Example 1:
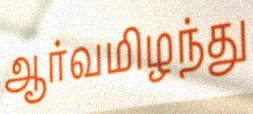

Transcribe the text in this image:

ஆர்வமிழந்து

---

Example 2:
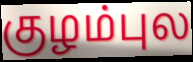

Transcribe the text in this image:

குழம்புல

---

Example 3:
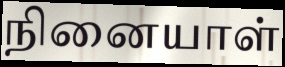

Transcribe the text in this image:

நினையாள்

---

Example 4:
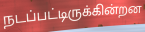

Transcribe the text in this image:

நடப்பட்டிருக்கின்றன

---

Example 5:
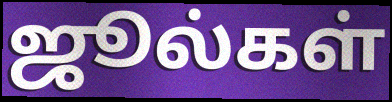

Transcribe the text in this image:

ஜூல்கள்